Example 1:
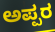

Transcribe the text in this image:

ಅಪ್ಪರ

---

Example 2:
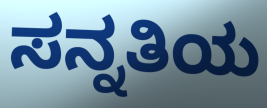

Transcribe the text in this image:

ಸನ್ನತಿಯ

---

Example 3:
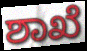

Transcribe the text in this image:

ಶಾಖೆ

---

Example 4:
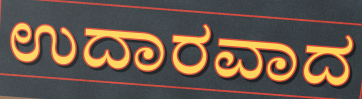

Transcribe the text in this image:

ಉದಾರವಾದ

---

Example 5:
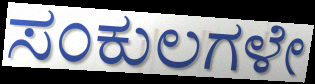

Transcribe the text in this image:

ಸಂಕುಲಗಳೇ